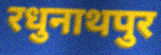
रधुनाथपुर